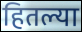
हितल्या